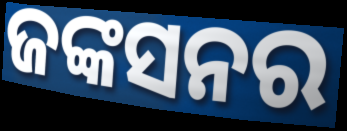
ଜଙ୍କସନର